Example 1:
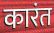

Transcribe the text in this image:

कारंत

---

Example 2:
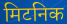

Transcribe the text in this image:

मिटनिक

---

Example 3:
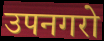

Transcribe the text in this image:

उपनगरो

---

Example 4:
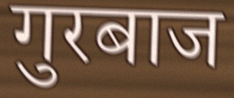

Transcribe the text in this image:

गुरबाज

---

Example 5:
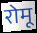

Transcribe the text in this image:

रोमू